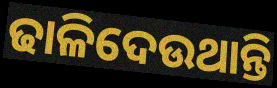
ଢାଳିଦେଉଥାନ୍ତି